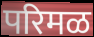
परिमळ